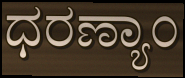
ಧರಣ್ಯಾಂ